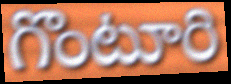
గొంటూరి